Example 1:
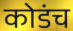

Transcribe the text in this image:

कोडंच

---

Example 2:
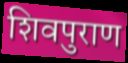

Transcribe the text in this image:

शिवपुराण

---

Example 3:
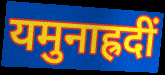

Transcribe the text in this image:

यमुनाह्रदीं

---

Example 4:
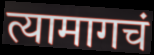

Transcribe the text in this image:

त्यामागचं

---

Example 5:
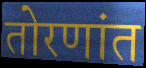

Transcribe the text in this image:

तोरणांत